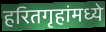
हरितगृहांमध्ये